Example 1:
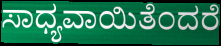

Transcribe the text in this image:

ಸಾಧ್ಯವಾಯಿತೆಂದರೆ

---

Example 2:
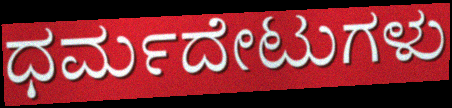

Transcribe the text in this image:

ಧರ್ಮದೇಟುಗಳು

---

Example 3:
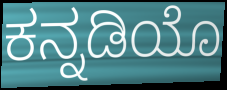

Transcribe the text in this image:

ಕನ್ನಡಿಯೊ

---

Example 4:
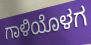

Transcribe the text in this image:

ಗಾಳಿಯೊಳಗ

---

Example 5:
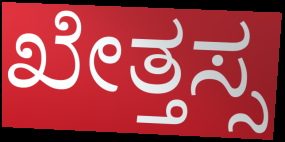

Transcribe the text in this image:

ಖೇತ್ತಸ್ಸ